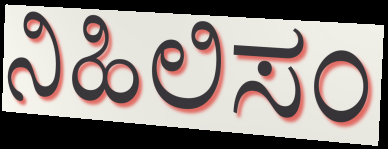
ನಿಹಿಲಿಸಂ